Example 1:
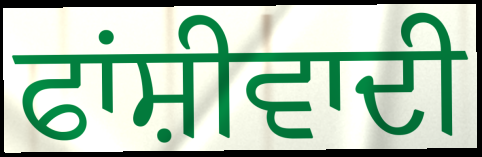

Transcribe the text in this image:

ਫਾਂਸ਼ੀਵਾਦੀ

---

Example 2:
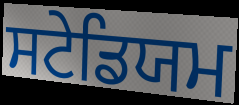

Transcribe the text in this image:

ਸਟੇਡਿਯਮ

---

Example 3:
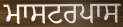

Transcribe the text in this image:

ਮਾਸਟਰਪਾਸ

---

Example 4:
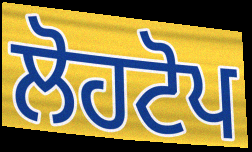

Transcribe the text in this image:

ਲੋਹਟੋਪ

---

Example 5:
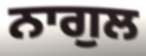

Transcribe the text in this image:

ਨਾਗੁਲ